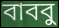
বাববু